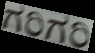
ಗರಿಗರಿ